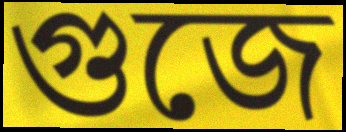
গুজে